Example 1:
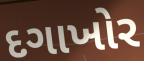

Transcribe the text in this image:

દગાખોર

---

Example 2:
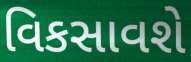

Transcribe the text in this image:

વિકસાવશે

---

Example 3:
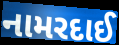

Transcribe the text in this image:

નામરદાઈ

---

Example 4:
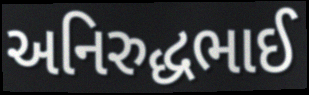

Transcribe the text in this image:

અનિરુદ્ધભાઈ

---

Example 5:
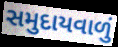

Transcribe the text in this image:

સમુદાયવાળું